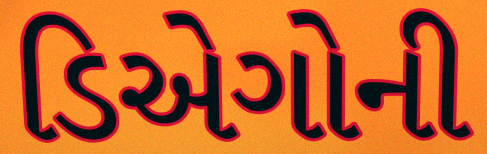
ડિએગોની